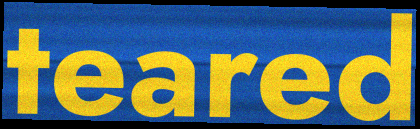
teared